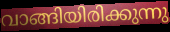
വാങ്ങിയിരിക്കുന്നു